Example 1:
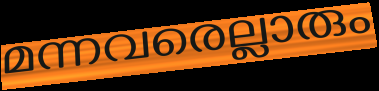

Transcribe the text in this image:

മന്നവരെല്ലാരും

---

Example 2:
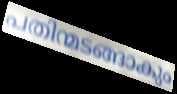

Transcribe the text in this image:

പതിന്മടങ്ങാകും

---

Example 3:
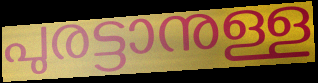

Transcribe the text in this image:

പുരട്ടാനുള്ള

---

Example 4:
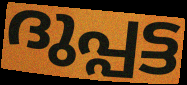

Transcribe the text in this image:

ദുപ്പട്ട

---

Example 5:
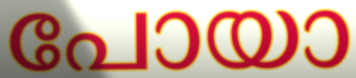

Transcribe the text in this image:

പോയാ